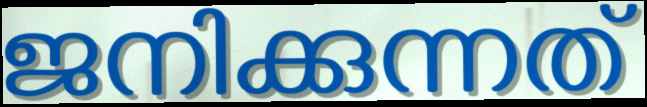
ജനിക്കുന്നത്